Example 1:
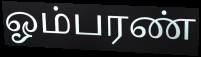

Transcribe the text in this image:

ஓம்பரண்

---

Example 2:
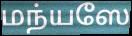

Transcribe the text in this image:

மந்யஸே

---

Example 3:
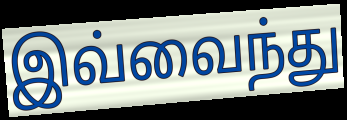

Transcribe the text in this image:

இவ்வைந்து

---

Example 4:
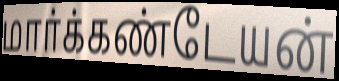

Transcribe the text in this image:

மார்க்கண்டேயன்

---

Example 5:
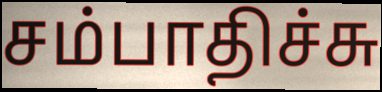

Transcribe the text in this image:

சம்பாதிச்சு